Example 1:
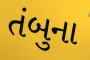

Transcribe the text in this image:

તંબુના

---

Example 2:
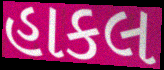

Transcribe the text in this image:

હાકલ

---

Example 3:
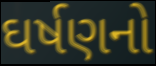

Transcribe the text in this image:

ઘર્ષણનો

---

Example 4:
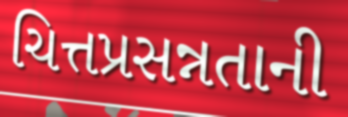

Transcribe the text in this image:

ચિત્તપ્રસન્નતાની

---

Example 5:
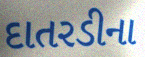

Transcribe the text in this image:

દાતરડીના